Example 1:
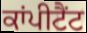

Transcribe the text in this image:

ਕਾਂਪੀਟੈਂਟ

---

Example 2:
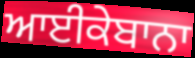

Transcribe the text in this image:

ਆਈਕੇਬਾਨਾ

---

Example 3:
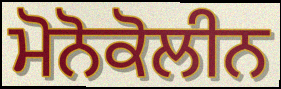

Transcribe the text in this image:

ਮੋਨੋਕੋਲੀਨ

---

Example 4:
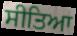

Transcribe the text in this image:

ਸੀਤਿਆ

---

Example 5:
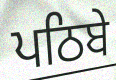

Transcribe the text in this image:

ਪਠਿਬੇ